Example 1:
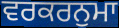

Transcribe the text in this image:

ਵਰਕਰਨੁਮਾ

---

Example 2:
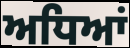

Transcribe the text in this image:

ਅਧਿਆਂ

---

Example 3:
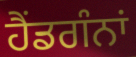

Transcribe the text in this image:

ਹੈਂਡਗੰਨਾਂ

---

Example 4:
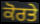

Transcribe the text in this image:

ਕੋਰਤੇ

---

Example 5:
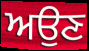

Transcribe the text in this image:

ਅਉਣ